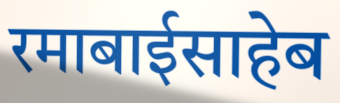
रमाबाईसाहेब